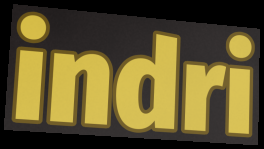
indri